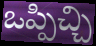
ఒప్పిచ్చి